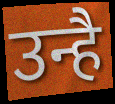
उन्है